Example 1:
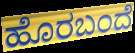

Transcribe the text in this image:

ಹೊರಬಂದೆ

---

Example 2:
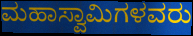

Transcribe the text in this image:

ಮಹಾಸ್ವಾಮಿಗಳವರು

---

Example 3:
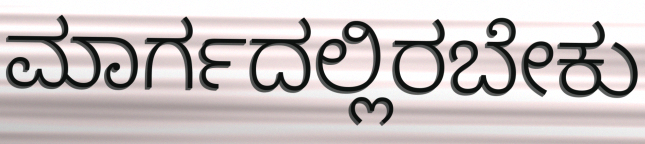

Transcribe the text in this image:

ಮಾರ್ಗದಲ್ಲಿರಬೇಕು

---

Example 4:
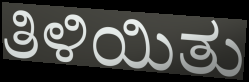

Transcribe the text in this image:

ತಿಳಿಯಿತು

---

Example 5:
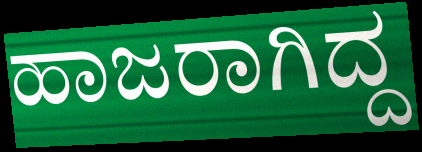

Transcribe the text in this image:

ಹಾಜರಾಗಿದ್ದ